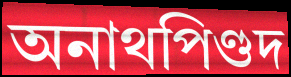
অনাথপিণ্ডদ